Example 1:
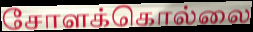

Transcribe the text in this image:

சோளக்கொல்லை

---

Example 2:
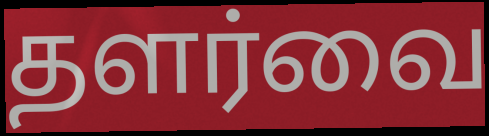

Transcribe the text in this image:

தளர்வை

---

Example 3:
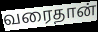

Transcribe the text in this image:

வரைதான்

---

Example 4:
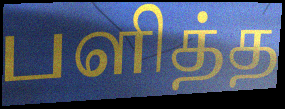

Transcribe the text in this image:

பளித்த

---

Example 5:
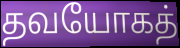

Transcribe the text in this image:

தவயோகத்